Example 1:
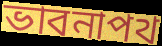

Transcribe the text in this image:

ভাবনাপথ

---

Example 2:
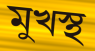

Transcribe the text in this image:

মুখস্থ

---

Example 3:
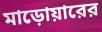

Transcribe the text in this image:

মাড়োয়ারের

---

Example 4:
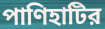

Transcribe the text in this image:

পাণিহাটির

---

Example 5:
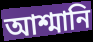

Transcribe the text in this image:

আশ্মানি